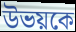
উভয়কে